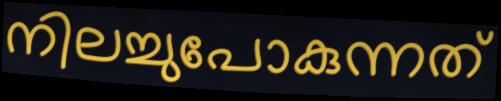
നിലച്ചുപോകുന്നത്